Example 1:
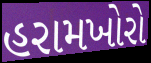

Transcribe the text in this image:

હરામખોરો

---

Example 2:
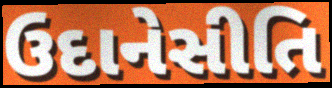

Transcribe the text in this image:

ઉદાનેસીતિ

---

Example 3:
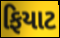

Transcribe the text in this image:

ફિયાટ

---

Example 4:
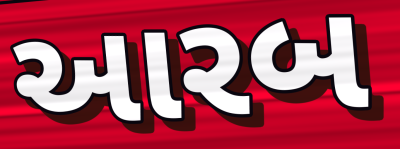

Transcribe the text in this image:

આરબ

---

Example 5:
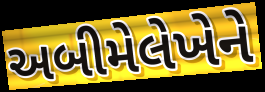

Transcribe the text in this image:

અબીમેલેખેને